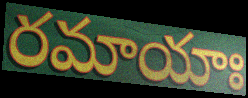
రమాయాః